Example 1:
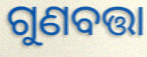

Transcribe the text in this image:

ଗୁଣବତ୍ତା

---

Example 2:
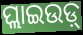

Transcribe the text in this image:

ପ୍ଲାଇଉଡ଼୍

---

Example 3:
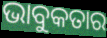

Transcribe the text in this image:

ଭାବୁକତାର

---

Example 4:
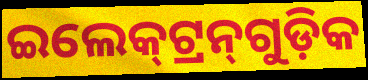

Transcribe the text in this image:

ଇଲେକ୍‍ଟ୍ରନ୍‍ଗୁଡ଼ିକ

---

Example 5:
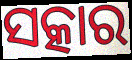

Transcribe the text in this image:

ସତ୍କାର